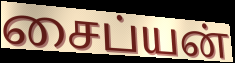
சைப்யன்